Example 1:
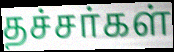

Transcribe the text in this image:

தச்சர்கள்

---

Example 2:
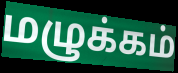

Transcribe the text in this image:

மழுக்கம்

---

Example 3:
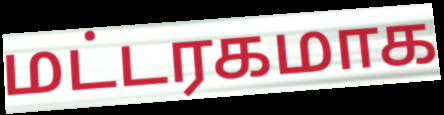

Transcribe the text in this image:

மட்டரகமாக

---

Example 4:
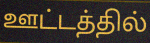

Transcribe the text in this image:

ஊட்டத்தில்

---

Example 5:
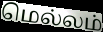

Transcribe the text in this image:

மெல்லம்